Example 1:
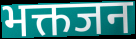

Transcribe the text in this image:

भक्तजन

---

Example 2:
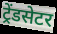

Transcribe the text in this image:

ट्रेंडसेटर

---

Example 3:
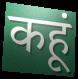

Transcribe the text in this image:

कहूं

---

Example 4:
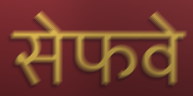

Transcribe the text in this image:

सेफवे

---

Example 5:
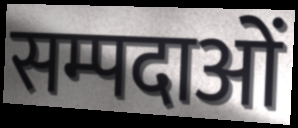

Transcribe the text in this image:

सम्पदाओं